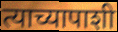
त्याच्यापाशी